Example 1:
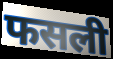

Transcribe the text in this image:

फसली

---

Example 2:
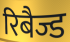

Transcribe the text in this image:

रिबैज्ड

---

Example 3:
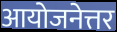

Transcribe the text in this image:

आयोजनेत्तर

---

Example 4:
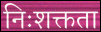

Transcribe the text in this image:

निःशक्तता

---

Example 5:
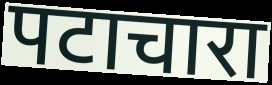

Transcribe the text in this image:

पटाचारा